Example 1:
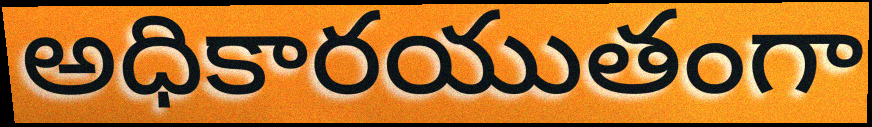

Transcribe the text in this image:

అధికారయుతంగా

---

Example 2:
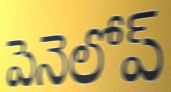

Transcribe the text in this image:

పెనెలోప్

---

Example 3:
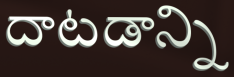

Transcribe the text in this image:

దాటడాన్ని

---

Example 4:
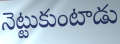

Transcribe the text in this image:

నెట్టుకుంటాడు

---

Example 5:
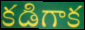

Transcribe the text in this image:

కడిగాక